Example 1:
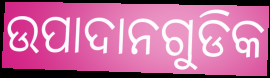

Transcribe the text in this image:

ଉପାଦାନଗୁଡିକ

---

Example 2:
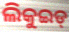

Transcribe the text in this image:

ଲିକୁଇଡ୍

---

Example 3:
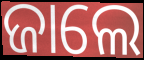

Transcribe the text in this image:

ଜାଲେ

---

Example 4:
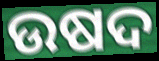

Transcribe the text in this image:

ଉଷଦ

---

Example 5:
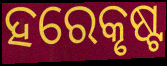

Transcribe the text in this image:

ହରେକୃଷ୍ଟ